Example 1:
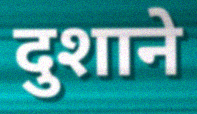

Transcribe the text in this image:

दुशाने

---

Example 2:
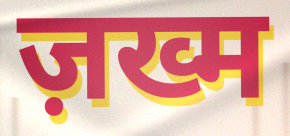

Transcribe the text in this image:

ज़ख्म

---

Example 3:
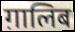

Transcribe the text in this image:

ग़ालिब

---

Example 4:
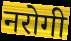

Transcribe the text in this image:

नरोगी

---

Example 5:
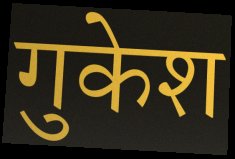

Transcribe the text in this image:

गुकेश